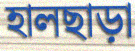
হালছাড়া